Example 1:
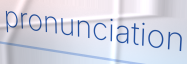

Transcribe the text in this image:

pronunciation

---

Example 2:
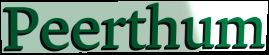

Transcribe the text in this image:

Peerthum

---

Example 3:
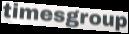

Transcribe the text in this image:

timesgroup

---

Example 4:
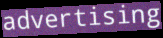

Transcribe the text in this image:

advertising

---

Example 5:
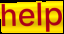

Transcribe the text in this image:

help